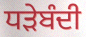
ਧੜੇਬੰਦੀ